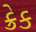
ક્રેક